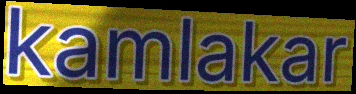
kamlakar